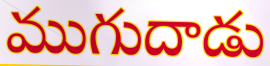
ముగుదాడు